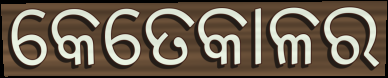
କେତେକାଳର